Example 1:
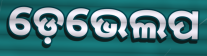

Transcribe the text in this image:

ଡ଼େଭେଲପ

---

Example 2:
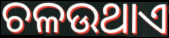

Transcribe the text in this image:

ଚଳଉଥାଏ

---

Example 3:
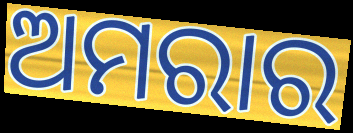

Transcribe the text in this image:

ଅମରାର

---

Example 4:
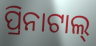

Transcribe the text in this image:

ପ୍ରିନାଟାଲ୍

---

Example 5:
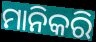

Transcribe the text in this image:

ମାନିକରି